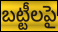
బట్టీలపై